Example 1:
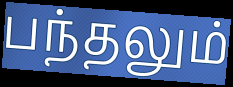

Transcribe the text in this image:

பந்தலும்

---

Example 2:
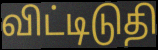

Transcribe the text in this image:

விட்டிடுதி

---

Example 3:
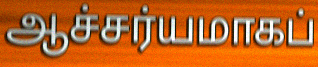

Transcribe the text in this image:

ஆச்சர்யமாகப்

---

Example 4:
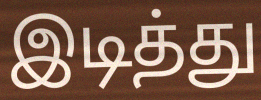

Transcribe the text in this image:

இடித்து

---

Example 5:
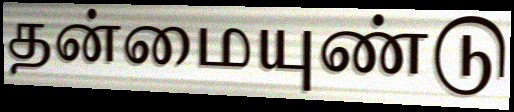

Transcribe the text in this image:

தன்மையுண்டு